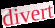
divert